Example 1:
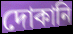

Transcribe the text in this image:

দোকানি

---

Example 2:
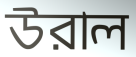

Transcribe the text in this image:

উরাল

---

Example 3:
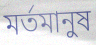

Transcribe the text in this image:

মর্তমানুষ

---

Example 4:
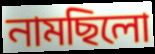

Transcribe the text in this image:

নামছিলো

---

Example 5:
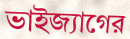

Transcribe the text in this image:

ভাইজ্যাগের